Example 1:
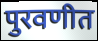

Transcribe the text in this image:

पुरवणीत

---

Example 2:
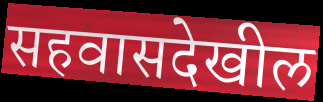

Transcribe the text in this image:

सहवासदेखील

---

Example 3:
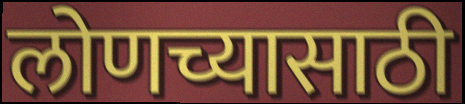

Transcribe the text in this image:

लोणच्यासाठी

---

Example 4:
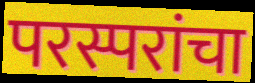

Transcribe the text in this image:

परस्परांचा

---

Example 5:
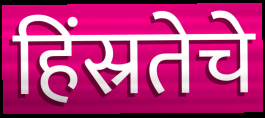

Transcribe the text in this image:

हिंस्रतेचे